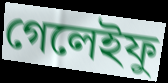
গেলেইফু